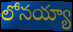
లోనయ్యా